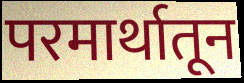
परमार्थातून